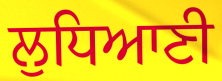
ਲੁਧਿਆਣੀ